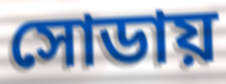
সোডায়